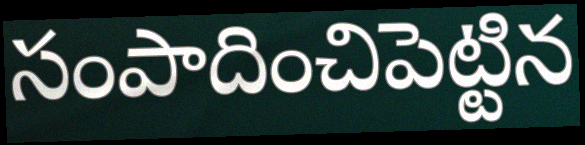
సంపాదించిపెట్టిన